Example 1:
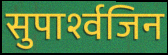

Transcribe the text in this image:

सुपार्श्वजिन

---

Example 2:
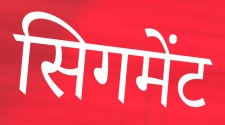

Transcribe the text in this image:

सिगमेंट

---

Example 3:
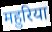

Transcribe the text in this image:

महुरिया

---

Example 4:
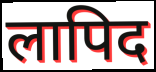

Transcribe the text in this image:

लापिद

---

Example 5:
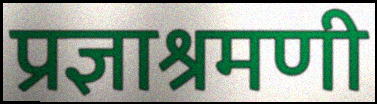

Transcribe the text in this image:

प्रज्ञाश्रमणी